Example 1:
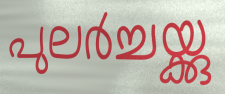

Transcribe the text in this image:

പുലർച്ചയ്ക്കു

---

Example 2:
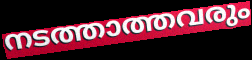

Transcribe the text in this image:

നടത്താത്തവരും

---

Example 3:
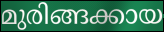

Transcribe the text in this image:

മുരിങ്ങക്കായ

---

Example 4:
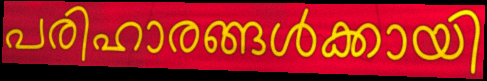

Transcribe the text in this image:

പരിഹാരങ്ങൾക്കായി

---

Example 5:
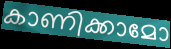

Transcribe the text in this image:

കാണിക്കാമോ